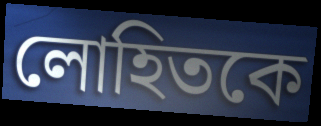
লোহিতকে